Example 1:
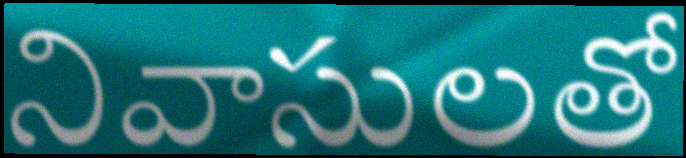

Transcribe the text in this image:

నివాసులతో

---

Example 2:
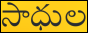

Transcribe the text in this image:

సాధుల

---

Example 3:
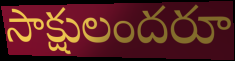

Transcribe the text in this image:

సాక్షులందరూ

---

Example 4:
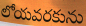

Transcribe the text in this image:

లోయవరకును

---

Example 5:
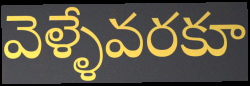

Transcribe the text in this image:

వెళ్ళేవరకూ